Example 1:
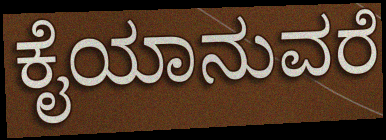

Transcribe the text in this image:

ಕೈಯಾನುವರೆ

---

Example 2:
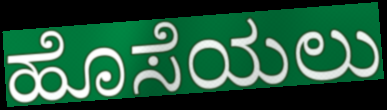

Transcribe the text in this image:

ಹೊಸೆಯಲು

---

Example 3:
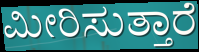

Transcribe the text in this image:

ಮೀರಿಸುತ್ತಾರೆ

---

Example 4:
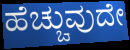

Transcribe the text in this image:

ಹೆಚ್ಚುವುದೇ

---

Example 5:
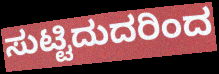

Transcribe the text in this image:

ಸುಟ್ಟಿದುದರಿಂದ